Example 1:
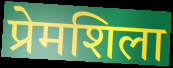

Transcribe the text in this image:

प्रेमशिला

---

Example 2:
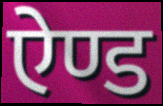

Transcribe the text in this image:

ऐण्ड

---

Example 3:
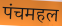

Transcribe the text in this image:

पंचमहल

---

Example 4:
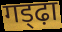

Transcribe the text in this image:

गड्ढ़ा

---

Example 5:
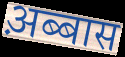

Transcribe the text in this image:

अ़ब्बास